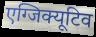
एग्जिक्यूटिव